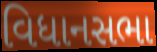
વિધાનસભા